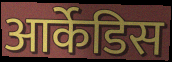
आर्केडिस